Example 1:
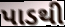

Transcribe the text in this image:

પાડથી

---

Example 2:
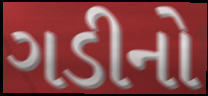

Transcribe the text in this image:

ગડીનો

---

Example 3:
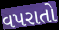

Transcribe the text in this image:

વપરાતો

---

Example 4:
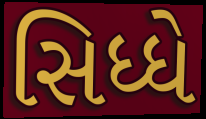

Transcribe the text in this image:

સિધ્ધે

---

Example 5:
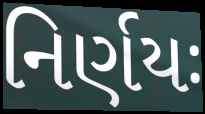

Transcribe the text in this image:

નિર્ણયઃ